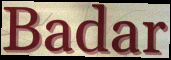
Badar